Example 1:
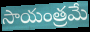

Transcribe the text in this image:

సాయంత్రమే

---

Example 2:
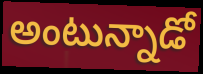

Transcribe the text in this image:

అంటున్నాడో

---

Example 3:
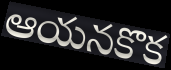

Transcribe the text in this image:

ఆయనకొక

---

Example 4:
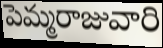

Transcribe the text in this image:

పెమ్మరాజువారి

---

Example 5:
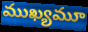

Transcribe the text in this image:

ముఖ్యమూ